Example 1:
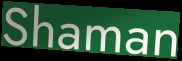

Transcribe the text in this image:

Shaman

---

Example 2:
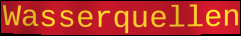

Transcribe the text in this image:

Wasserquellen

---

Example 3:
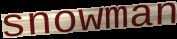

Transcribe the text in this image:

snowman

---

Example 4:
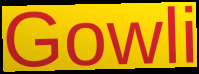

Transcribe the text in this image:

Gowli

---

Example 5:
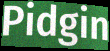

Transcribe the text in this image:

Pidgin